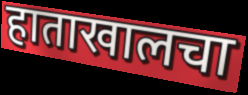
हाताखालचा